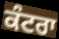
ਕੰਟਰਾ